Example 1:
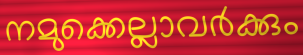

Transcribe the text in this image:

നമുക്കെല്ലാവർക്കും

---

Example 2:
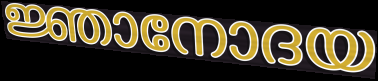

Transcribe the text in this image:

ജ്ഞാനോദയ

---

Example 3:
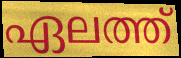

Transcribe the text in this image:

ഏലത്ത്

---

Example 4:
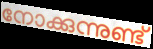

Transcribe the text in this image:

നോക്കുന്നുണ്ട്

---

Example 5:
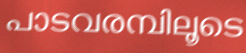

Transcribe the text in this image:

പാടവരമ്പിലൂടെ